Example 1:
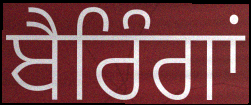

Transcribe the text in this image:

ਬੈਰਿੰਗਾਂ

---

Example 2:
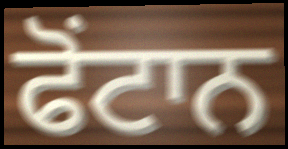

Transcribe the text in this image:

ਫੋਂਟਾਨ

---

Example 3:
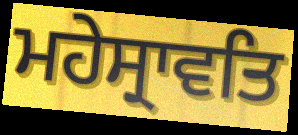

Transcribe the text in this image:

ਮਹੇਸ੍ਰਾਵਤਿ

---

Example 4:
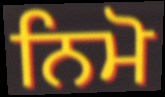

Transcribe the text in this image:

ਨਿਮੋ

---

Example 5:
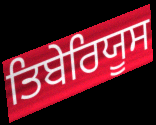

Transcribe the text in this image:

ਤਿਬੇਰਿਯੂਸ